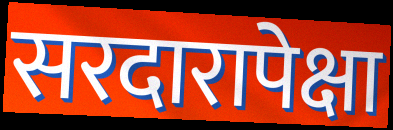
सरदारापेक्षा